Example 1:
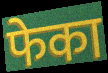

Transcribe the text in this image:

फेका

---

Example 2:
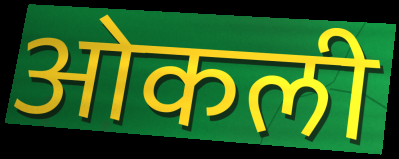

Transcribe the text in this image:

ओकली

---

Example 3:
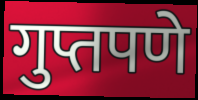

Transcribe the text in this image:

गुप्तपणे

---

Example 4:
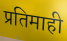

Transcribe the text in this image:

प्रतिमाही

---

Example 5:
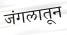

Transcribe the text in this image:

जंगलातून